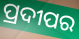
ପ୍ରଦୀପର